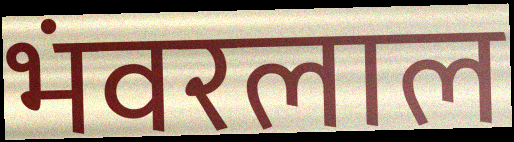
भंवरलाल